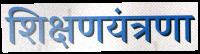
शिक्षणयंत्रणा